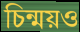
চিন্ময়ও